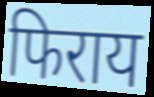
फिराय